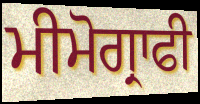
ਮੀਮੋਗ੍ਰਾਫੀ